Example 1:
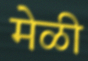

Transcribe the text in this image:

मेळी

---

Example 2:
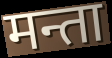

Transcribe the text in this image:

मन्ता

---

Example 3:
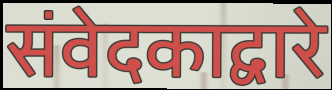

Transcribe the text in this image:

संवेदकाद्वारे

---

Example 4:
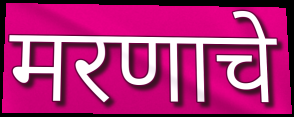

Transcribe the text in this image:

मरणाचे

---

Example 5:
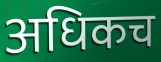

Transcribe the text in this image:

अधिकच